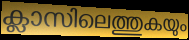
ക്ലാസിലെത്തുകയും